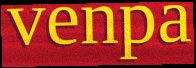
venpa